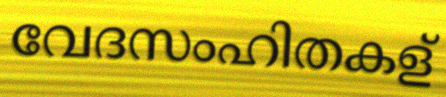
വേദസംഹിതകള്